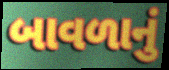
બાવળાનું